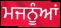
ਮਜਨੂੰਆਂ